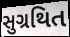
સુગ્રથિત